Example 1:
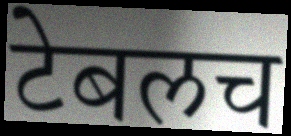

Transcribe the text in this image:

टेबलच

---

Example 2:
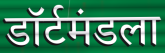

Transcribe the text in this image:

डॉर्टमंडला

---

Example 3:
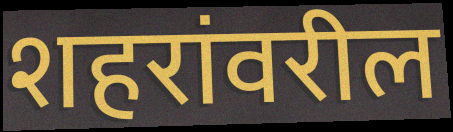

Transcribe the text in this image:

शहरांवरील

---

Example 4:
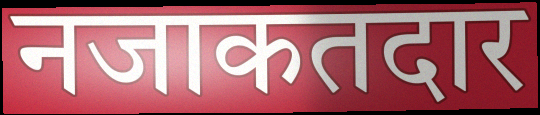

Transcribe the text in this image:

नजाकतदार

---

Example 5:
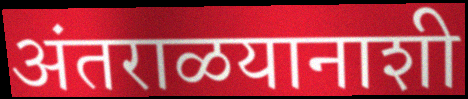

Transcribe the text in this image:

अंतराळयानाशी